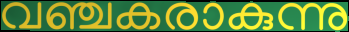
വഞ്ചകരാകുന്നു